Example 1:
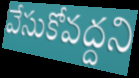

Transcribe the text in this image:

వేసుకోవద్దని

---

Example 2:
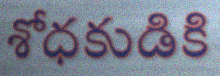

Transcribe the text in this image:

శోధకుడికి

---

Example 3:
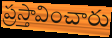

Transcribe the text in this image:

ప్రస్తావించారు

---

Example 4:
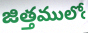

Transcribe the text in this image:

జిత్తములోఁ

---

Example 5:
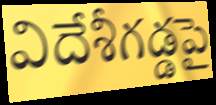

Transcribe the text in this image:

విదేశీగడ్డపై